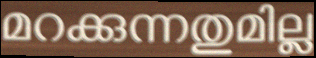
മറക്കുന്നതുമില്ല